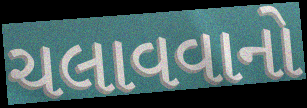
ચલાવવાનો